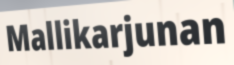
Mallikarjunan